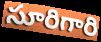
సూరిగారి